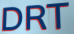
DRT